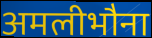
अमलीभौना